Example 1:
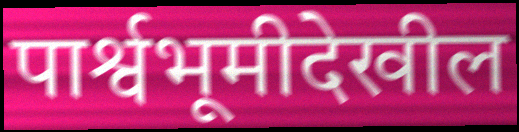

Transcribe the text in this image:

पार्श्वभूमीदेखील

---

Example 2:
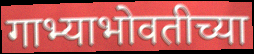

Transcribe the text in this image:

गाभ्याभोवतीच्या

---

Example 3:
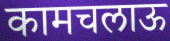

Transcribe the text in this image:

कामचलाऊ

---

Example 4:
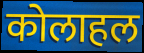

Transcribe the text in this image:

कोलाहल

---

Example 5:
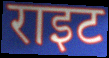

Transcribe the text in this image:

राइट